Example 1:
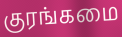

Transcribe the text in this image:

குரங்கமை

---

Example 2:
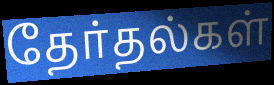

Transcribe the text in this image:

தேர்தல்கள்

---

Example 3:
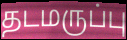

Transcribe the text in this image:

தடமருப்பு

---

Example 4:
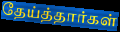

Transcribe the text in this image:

தேய்த்தார்கள்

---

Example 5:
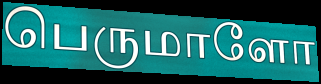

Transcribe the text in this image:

பெருமாளோ